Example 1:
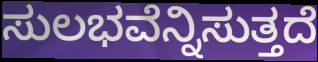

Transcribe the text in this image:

ಸುಲಭವೆನ್ನಿಸುತ್ತದೆ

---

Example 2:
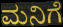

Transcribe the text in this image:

ಮನಿಗೆ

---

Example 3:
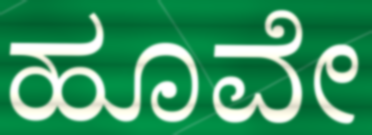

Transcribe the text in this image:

ಹೂವೇ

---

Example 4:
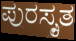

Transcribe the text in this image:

ಪುರಸ್ಕೃತ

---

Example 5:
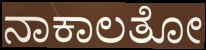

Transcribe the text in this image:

ನಾಕಾಲತೋ